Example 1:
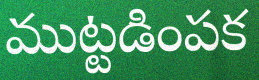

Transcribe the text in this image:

ముట్టడింపక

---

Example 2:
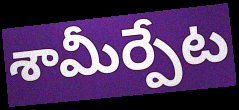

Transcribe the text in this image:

శామీర్పేట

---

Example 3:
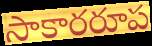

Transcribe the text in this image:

సాకారరూప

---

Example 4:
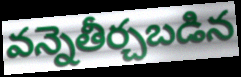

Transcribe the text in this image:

వన్నెతీర్చబడిన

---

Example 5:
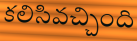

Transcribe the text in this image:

కలిసివచ్చింది